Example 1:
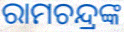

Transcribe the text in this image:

ରାମଚନ୍ଦ୍ରଙ୍କ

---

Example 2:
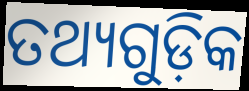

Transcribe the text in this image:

ତଥ୍ୟଗୁଡ଼ିକ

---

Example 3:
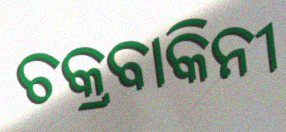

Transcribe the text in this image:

ଚକ୍ରବାକିନୀ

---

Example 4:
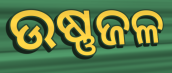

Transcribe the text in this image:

ଉଷ୍ଣଜଳ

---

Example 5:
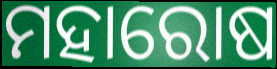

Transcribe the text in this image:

ମହାରୋଷ